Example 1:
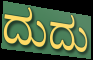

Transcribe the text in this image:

ದುದು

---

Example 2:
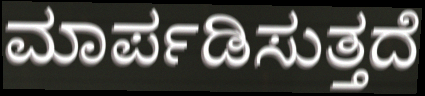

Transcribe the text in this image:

ಮಾರ್ಪಡಿಸುತ್ತದೆ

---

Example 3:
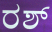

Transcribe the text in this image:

ರಶ್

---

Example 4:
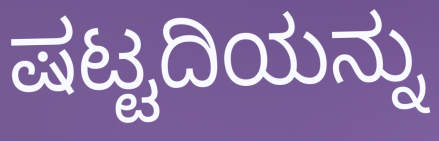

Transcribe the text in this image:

ಷಟ್ಟದಿಯನ್ನು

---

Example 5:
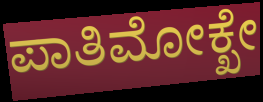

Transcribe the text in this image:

ಪಾತಿಮೋಕ್ಖೇ